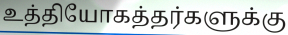
உத்தியோகத்தர்களுக்கு